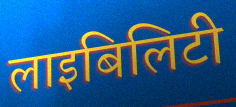
लाइबिलिटी